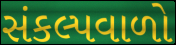
સંકલ્પવાળો